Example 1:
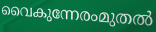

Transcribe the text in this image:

വൈകുന്നേരംമുതൽ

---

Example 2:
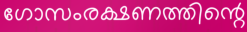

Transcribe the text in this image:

ഗോസംരക്ഷണത്തിന്റെ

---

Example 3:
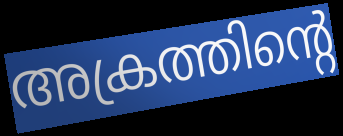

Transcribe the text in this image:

അക്രത്തിന്റെ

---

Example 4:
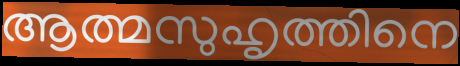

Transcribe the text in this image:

ആത്മസുഹൃത്തിനെ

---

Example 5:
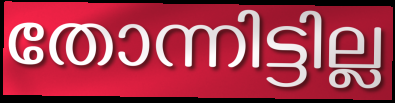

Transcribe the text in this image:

തോന്നിട്ടില്ല